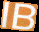
IB